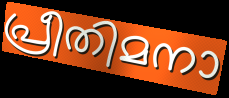
പ്രീതിമനാ